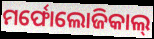
ମର୍ଫୋଲୋଜିକାଲ୍